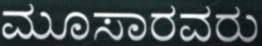
ಮೂಸಾರವರು